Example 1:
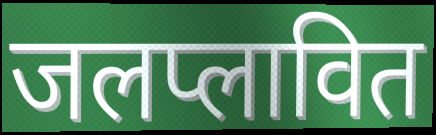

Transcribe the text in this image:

जलप्लावित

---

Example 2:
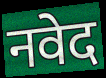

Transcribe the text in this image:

नवेद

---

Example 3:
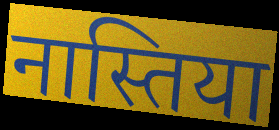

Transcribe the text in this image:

नास्तिया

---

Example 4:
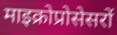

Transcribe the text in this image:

माइक्रोप्रोसेसरों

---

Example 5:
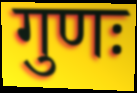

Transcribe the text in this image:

गुणः